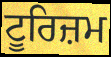
ਟੂਰਿਜ਼ਮ